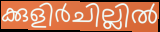
ക്കുളിർചില്ലിൽ